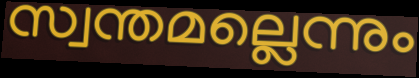
സ്വന്തമല്ലെന്നും